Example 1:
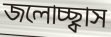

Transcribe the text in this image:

জলোচ্ছ্বাস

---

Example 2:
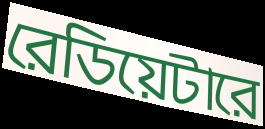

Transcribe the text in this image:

রেডিয়েটারে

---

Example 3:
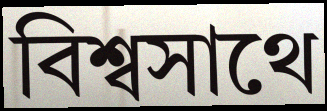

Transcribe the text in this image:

বিশ্বসাথে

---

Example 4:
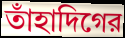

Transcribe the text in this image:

তাঁহাদিগের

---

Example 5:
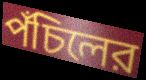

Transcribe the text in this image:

পঁচিলের